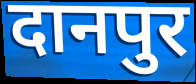
दानपुर